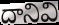
దానివి